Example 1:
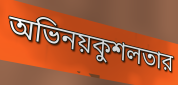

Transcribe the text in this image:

অভিনয়কুশলতার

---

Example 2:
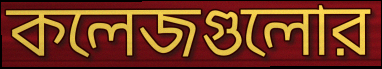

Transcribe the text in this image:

কলেজগুলোর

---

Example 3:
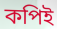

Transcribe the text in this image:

কপিই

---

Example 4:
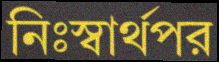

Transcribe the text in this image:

নিঃস্বার্থপর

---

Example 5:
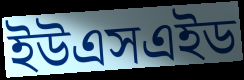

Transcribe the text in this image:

ইউএসএইড